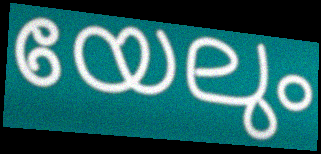
യേലും